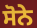
ਸੋਨੇ